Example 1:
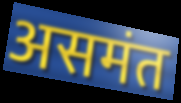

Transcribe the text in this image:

असमंत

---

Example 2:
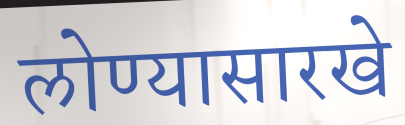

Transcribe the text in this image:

लोण्यासारखे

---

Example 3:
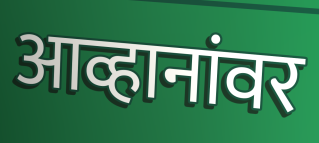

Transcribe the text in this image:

आव्हानांवर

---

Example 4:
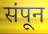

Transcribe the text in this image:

संपून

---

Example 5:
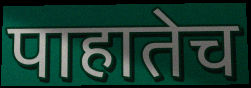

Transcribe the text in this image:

पाहातेच